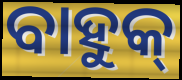
ବାହୁକ୍